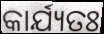
କାର୍ଯ୍ୟତଃ